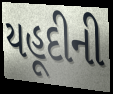
યહૂદીની